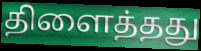
திளைத்தது